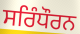
ਸਰਿੰਧੌਰਨ